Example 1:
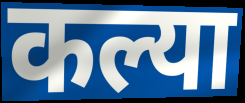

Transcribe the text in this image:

कल्या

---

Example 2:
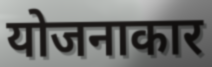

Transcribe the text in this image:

योजनाकार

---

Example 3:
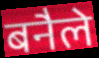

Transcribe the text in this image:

बनैले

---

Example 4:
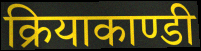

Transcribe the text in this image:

क्रियाकाण्डी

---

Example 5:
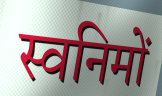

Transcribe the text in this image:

स्वनिमों